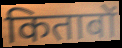
किताबों